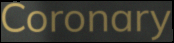
Coronary